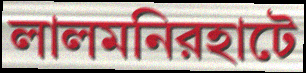
লালমনিরহাটে